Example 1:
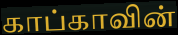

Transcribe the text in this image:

காப்காவின்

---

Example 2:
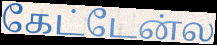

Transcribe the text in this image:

கேட்டேன்ல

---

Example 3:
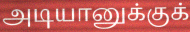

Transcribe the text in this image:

அடியானுக்குக்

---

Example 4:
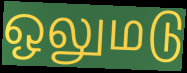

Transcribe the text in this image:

ஒலுமடு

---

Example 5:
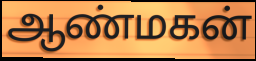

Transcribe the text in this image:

ஆண்மகன்